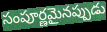
సంపూర్ణమైనప్పుడు